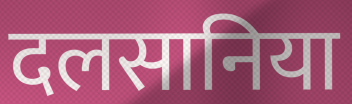
दलसानिया